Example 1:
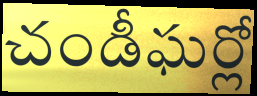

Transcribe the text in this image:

చండీఘర్లో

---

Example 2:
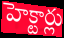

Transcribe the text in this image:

హెక్టార్లు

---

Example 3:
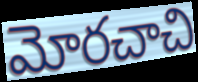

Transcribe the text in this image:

మోరచాచి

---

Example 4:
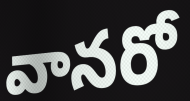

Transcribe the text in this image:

వానరో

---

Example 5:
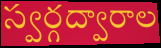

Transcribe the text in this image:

స్వర్గద్వారాల